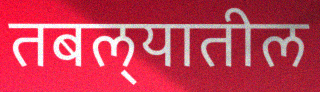
तबल्यातील